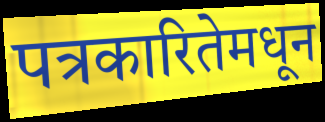
पत्रकारितेमधून